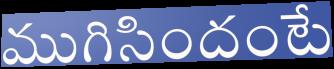
ముగిసిందంటే